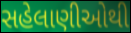
સહેલાણીઓથી